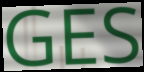
GES